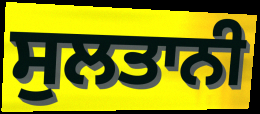
ਸੁਲਤਾਨੀ